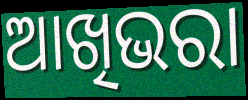
ଆଖିଭରା